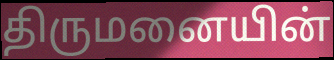
திருமனையின்